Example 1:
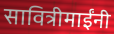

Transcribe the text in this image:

सावित्रीमाईंनी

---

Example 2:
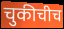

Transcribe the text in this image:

चुकीचीच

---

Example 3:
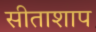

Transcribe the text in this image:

सीताशाप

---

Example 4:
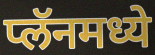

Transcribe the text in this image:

प्लॅनमध्ये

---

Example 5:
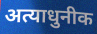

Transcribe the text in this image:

अत्याधुनीक